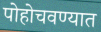
पोहोचवण्यात